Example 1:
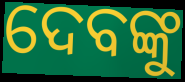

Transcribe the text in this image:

ଦେବଙ୍କୁ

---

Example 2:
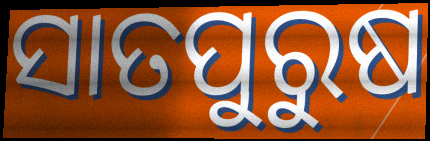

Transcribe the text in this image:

ସାତପୁରୁଷ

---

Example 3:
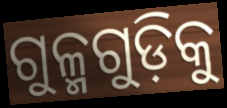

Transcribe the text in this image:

ଗୁଳ୍ମଗୁଡ଼ିକୁ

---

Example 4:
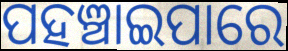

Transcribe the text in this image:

ପହଞ୍ଚାଇପାରେ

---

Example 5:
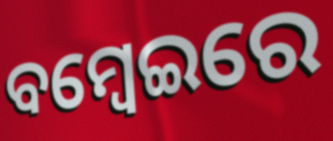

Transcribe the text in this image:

ବମ୍ବେଇରେ